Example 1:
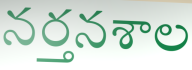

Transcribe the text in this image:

నర్తనశాల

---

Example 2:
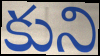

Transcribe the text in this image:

కుని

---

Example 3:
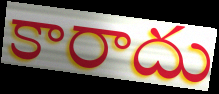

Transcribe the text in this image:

కారాదు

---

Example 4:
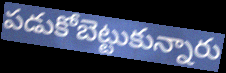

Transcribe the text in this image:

పడుకోబెట్టుకున్నారు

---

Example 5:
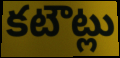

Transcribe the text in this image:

కటౌట్లు